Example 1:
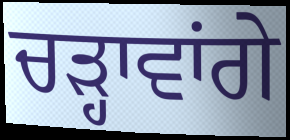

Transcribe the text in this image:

ਚੜ੍ਹਾਵਾਂਗੇ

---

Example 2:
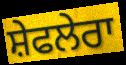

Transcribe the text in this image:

ਸ਼ੇਫਲੇਰਾ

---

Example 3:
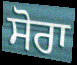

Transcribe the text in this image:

ਸੋਰਾ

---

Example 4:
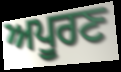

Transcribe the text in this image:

ਅਪੂਰਣ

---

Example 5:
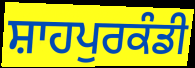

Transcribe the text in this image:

ਸ਼ਾਹਪੁਰਕੰਡੀ